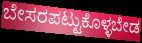
ಬೇಸರಪಟ್ಟುಕೊಳ್ಳಬೇಡ